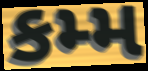
કમ્મ